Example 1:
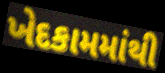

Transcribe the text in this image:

ખેદકામમાંથી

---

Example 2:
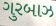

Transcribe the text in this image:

ગુરબાઝ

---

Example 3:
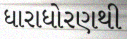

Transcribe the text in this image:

ધારાધોરણથી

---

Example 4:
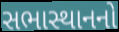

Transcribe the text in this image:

સભાસ્થાનનો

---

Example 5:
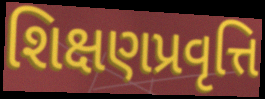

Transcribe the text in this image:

શિક્ષણપ્રવૃત્તિ